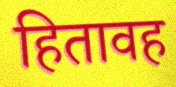
हितावह